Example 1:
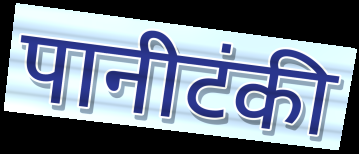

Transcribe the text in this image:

पानीटंकी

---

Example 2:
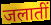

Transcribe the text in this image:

जलातीं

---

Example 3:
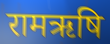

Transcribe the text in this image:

रामऋषि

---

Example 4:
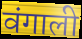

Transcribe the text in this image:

वंगाली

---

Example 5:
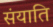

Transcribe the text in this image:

संयाति